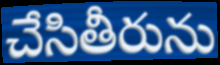
చేసితీరును